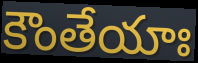
కౌంతేయాః